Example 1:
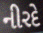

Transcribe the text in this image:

નીરદે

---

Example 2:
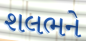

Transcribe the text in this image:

શલભને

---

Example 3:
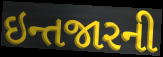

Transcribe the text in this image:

ઇન્તજારની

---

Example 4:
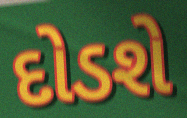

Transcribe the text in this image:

દોડશે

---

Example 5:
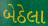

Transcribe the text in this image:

બેઠેલા